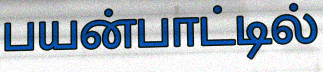
பயன்பாட்டில்